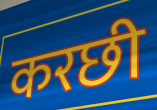
करछी